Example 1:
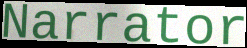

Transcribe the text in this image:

Narrator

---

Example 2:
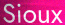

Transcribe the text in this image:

Sioux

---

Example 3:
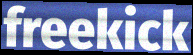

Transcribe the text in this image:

freekick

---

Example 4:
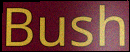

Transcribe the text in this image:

Bush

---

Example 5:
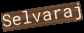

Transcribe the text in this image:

Selvaraj